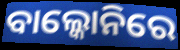
ବାଲ୍କୋନିରେ